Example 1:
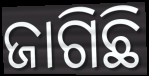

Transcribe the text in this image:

ଜାଗିଛି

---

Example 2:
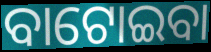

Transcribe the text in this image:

ବାଟୋଇବା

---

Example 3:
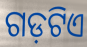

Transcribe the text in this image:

ଗଡ଼ଟିଏ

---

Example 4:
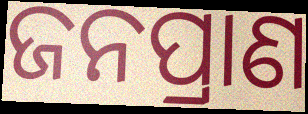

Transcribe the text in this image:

ଜନପ୍ରାଣ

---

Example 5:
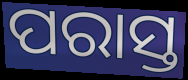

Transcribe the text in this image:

ପରାସ୍ତ